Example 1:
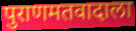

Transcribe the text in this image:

पुराणमतवादाला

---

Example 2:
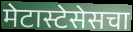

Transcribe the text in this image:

मेटास्टेसेसचा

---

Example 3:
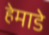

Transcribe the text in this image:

हेमाडे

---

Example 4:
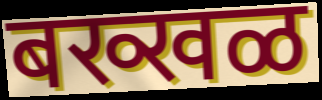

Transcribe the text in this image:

बख्खळ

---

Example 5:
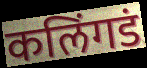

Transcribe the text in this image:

कलिंगडं